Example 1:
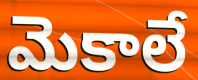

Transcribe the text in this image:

మెకాలే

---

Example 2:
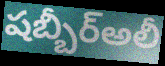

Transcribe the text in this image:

షబ్బీర్అలీ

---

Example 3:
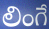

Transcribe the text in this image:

లింగే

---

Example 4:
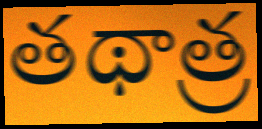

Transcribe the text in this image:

తథాత్ర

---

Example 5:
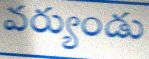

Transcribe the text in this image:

వర్యుండు